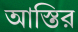
আস্তির